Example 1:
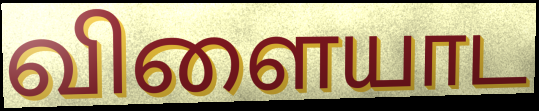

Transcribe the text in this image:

விளையாட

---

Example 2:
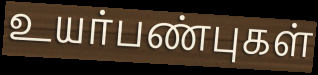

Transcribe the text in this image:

உயர்பண்புகள்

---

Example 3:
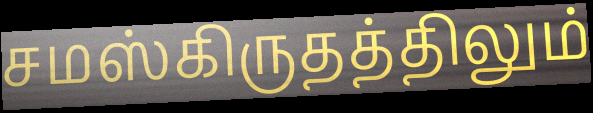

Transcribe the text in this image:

சமஸ்கிருதத்திலும்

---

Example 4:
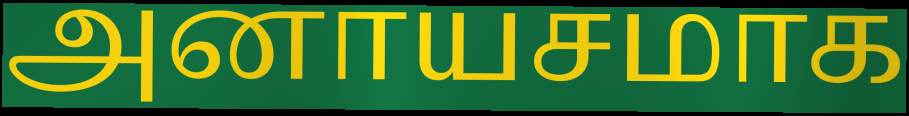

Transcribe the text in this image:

அனாயசமாக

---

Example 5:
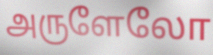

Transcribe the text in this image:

அருளேலோ